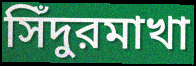
সিঁদুরমাখা